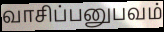
வாசிப்பனுபவம்